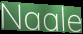
Naale